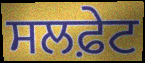
ਸਲਫ਼ੇਟ